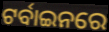
ଟର୍ବାଇନରେ